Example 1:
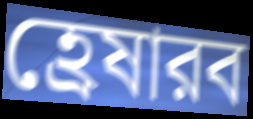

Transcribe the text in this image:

হ্রেষারব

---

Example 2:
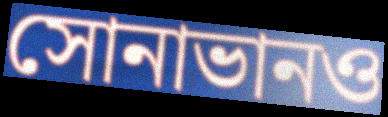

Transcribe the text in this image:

সোনাভানও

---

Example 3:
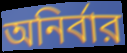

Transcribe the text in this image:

অনির্বার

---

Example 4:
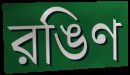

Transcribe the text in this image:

রঙিণ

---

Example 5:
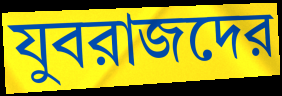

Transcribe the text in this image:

যুবরাজদের